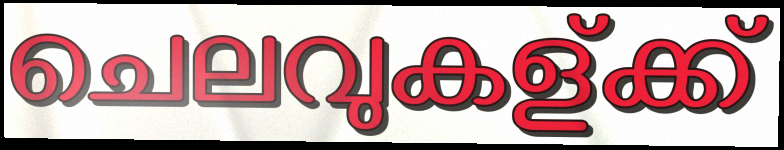
ചെലവുകള്ക്ക്